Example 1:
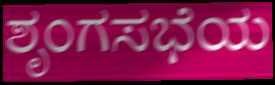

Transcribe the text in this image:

ಶೃಂಗಸಭೆಯ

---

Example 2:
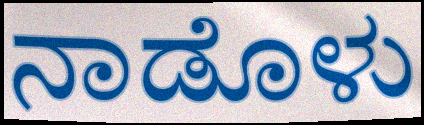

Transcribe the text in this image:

ನಾಡೊಳು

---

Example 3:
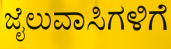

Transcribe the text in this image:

ಜೈಲುವಾಸಿಗಳಿಗೆ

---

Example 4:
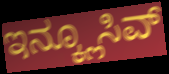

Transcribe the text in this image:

ಇನ್ಕ್ಲೂಸಿವ್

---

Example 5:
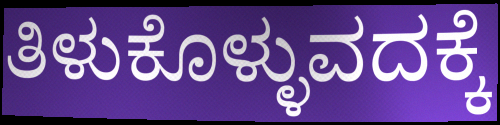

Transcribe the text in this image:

ತಿಳುಕೊಳ್ಳುವದಕ್ಕೆ